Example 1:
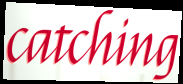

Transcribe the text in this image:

catching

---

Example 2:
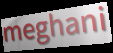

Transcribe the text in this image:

meghani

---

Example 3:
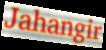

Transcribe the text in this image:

Jahangir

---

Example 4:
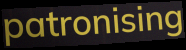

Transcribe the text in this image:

patronising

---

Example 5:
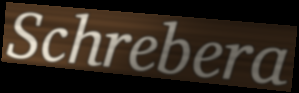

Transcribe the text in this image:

Schrebera